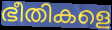
ഭീതികളെ